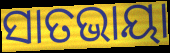
ସାତଭାୟା